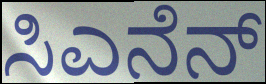
ಸಿಎನೆನ್